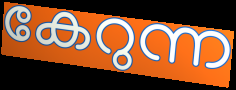
കേറുന്ന